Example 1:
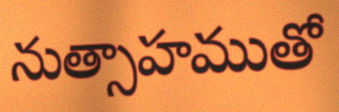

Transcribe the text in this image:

నుత్సాహముతో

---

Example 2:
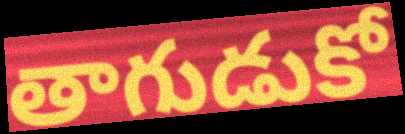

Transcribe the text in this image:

తాగుడుకో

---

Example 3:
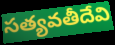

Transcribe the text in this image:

సత్యవతీదేవి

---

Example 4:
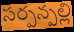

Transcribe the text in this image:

సర్పన్పల్లి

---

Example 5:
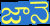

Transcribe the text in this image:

జానె